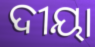
ଦୀୟା